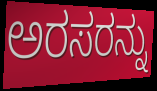
ಅರಸರನ್ನು